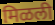
मिळली